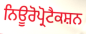
ਨਿਊਰੋਪ੍ਰੋਟੈਕਸ਼ਨ